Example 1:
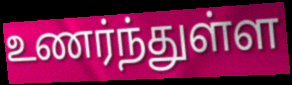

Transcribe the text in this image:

உணர்ந்துள்ள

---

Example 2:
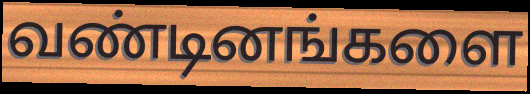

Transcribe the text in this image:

வண்டினங்களை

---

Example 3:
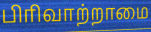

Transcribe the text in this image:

பிரிவாற்றாமை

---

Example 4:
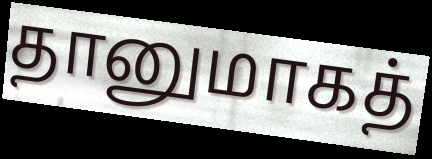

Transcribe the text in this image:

தானுமாகத்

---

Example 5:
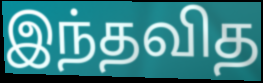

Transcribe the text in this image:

இந்தவித